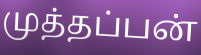
முத்தப்பன்